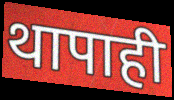
थापाही